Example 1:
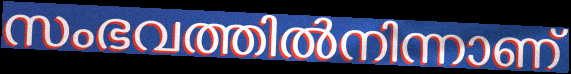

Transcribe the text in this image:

സംഭവത്തിൽനിന്നാണ്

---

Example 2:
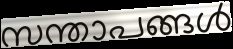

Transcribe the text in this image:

സന്താപങ്ങൾ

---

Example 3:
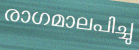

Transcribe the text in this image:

രാഗമാലപിച്ചു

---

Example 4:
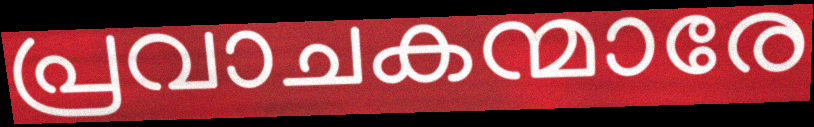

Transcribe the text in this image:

പ്രവാചകന്മാരേ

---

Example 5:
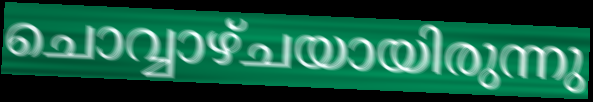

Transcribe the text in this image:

ചൊവ്വാഴ്ചയായിരുന്നു